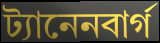
ট্যানেনবার্গ